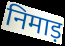
निमाड़